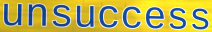
unsuccess